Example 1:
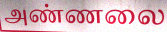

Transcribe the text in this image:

அண்ணலை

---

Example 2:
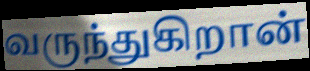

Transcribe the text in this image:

வருந்துகிறான்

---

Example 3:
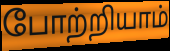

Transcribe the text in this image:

போற்றியாம்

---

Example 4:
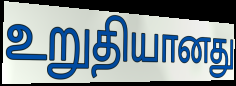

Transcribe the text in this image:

உறுதியானது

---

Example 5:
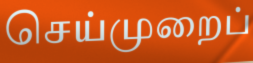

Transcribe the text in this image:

செய்முறைப்